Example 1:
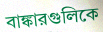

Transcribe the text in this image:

বাঙ্কারগুলিকে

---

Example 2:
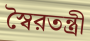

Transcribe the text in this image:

স্বৈরতন্ত্রী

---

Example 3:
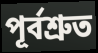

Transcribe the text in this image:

পূর্বশ্রুত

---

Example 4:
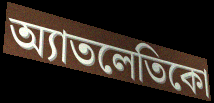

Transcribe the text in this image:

অ্যাতলেতিকো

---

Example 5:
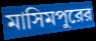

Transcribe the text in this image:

মাসিমপুরের